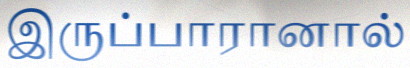
இருப்பாரானால்